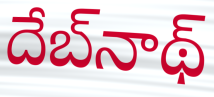
దేబ్‌నాథ్